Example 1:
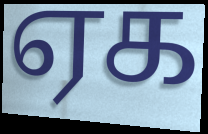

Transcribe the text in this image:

ஏக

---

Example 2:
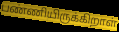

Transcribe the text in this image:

பண்ணியிருக்கிறாள்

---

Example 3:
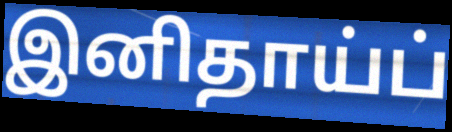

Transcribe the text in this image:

இனிதாய்ப்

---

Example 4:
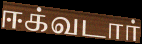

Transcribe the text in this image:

ஈக்வடார்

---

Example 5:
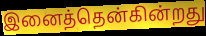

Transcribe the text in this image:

இனைத்தென்கின்றது